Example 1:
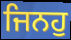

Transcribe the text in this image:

ਜਿਨਹੁ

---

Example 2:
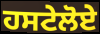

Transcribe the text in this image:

ਹਸਟੇਲੋਏ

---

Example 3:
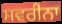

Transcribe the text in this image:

ਸਵਰੀਨਾ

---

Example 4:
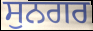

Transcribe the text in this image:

ਸੁਨਗਰ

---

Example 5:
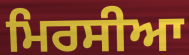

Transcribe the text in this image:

ਮਿਰਸੀਆ